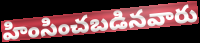
హింసించబడినవారు